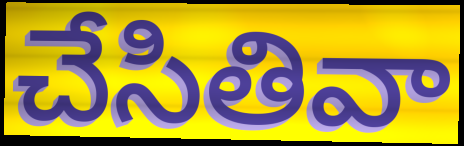
చేసితివా